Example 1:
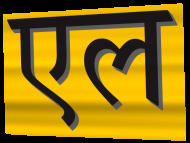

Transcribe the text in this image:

एल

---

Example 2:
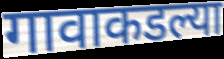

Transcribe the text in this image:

गावाकडल्या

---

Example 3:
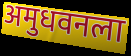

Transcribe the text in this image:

अमुधवनला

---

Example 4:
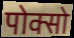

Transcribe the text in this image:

पोक्सो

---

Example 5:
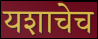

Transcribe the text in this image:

यशाचेच